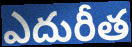
ఎదురీత